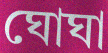
ঘোঘা